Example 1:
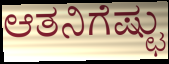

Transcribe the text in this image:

ಆತನಿಗೆಷ್ಟು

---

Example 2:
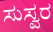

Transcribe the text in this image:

ಸುಸ್ವರ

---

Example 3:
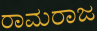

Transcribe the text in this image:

ರಾಮರಾಜ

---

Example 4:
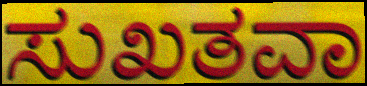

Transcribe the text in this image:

ಸುಖತವಾ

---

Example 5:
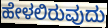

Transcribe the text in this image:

ಹೇಳಲಿರುವುದು